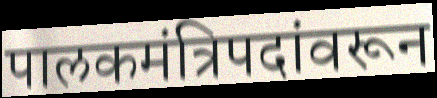
पालकमंत्रिपदांवरून